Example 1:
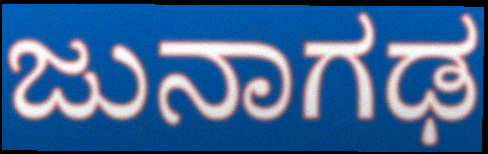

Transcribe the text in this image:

ಜುನಾಗಢ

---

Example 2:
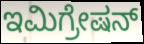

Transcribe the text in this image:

ಇಮಿಗ್ರೇಷನ್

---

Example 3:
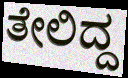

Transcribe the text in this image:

ತೇಲಿದ್ದ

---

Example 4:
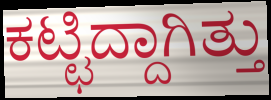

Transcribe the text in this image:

ಕಟ್ಟಿದ್ದಾಗಿತ್ತು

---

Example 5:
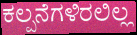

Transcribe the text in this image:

ಕಲ್ಪನೆಗಳಿರಲಿಲ್ಲ